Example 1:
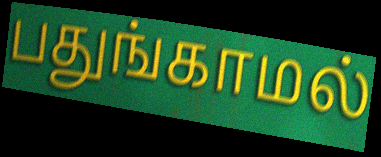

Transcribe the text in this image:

பதுங்காமல்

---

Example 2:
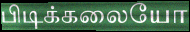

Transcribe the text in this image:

பிடிக்கலையோ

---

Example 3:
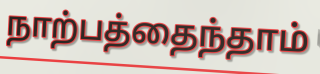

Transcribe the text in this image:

நாற்பத்தைந்தாம்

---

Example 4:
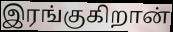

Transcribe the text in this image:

இரங்குகிறான்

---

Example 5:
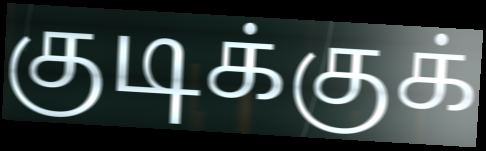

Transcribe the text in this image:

குடிக்குக்